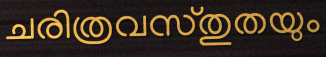
ചരിത്രവസ്തുതയും